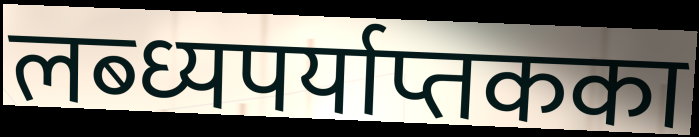
लब्ध्यपर्याप्तकका